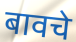
बावचे